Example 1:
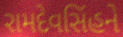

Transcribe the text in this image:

રામદેવસિંહને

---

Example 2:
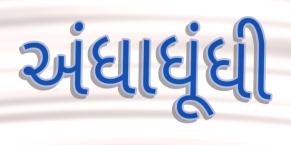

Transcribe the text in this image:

અંધાધૂંધી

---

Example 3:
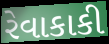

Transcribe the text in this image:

રેવાકાકી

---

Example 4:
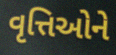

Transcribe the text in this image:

વૃત્તિઓને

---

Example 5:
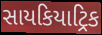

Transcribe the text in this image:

સાયકિયાટ્રિક